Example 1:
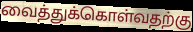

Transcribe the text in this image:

வைத்துக்கொள்வதற்கு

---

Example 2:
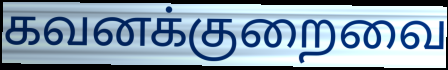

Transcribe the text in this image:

கவனக்குறைவை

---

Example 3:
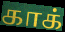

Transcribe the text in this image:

காக்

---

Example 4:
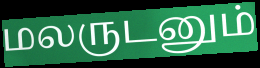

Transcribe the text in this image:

மலருடனும்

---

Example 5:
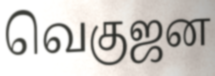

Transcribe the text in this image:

வெகுஜன